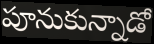
పూనుకున్నాడో